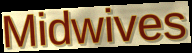
Midwives